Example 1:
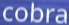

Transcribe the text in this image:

cobra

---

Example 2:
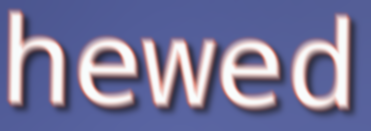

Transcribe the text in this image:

hewed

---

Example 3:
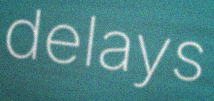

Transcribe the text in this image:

delays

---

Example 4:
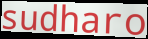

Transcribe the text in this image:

sudharo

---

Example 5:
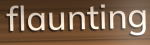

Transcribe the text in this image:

flaunting